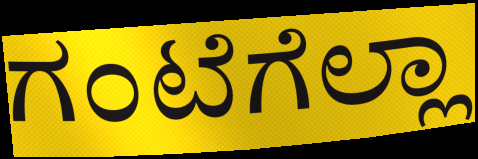
ಗಂಟೆಗೆಲ್ಲಾ